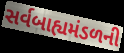
સર્વબાહ્યમંડળની